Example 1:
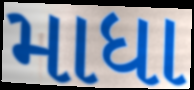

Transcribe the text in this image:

માધા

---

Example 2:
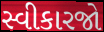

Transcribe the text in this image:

સ્વીકારજો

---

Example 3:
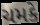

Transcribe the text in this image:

ચમકે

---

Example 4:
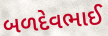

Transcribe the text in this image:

બળદેવભાઈ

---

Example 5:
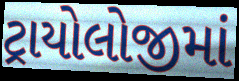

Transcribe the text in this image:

ટ્રાયોલોજીમાં